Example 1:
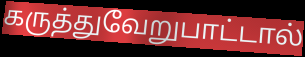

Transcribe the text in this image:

கருத்துவேறுபாட்டால்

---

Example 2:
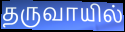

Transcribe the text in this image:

தருவாயில்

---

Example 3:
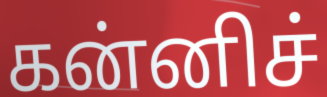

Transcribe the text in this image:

கன்னிச்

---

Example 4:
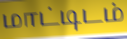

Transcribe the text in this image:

மாட்டிடம்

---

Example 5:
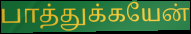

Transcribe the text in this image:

பாத்துக்கயேன்